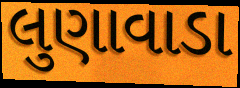
લુણાવાડા